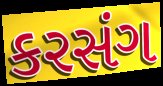
કરસંગ